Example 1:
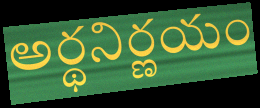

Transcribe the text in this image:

అర్థనిర్ణయం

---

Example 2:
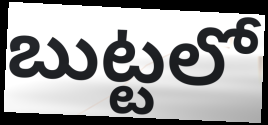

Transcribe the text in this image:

బుట్టలో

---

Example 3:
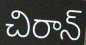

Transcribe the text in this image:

చిరాన్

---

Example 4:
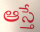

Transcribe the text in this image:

ఆస్తే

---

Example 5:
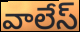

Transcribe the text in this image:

వాలేస్